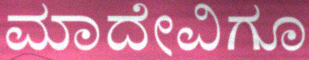
ಮಾದೇವಿಗೂ